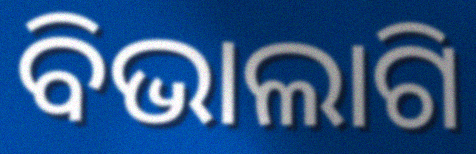
ବିଭାଲାଗି